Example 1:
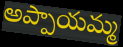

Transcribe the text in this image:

అప్పాయమ్మ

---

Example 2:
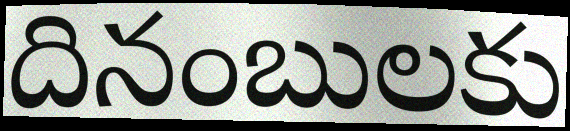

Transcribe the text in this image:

దినంబులకు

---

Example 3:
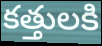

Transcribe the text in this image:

కత్తులకి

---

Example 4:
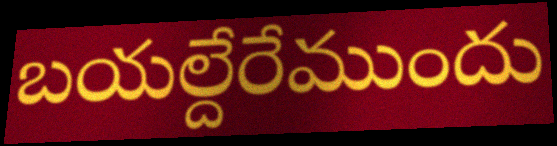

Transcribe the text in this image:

బయల్దేరేముందు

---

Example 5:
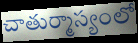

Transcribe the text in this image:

చాతుర్మాస్యంలో